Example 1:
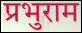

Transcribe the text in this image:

प्रभुराम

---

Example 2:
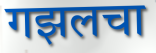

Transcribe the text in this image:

गझलचा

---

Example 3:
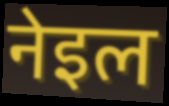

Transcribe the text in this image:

नेइल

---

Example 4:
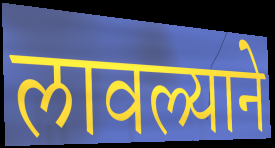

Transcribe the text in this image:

लावल्याने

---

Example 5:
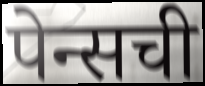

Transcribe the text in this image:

पेन्सची